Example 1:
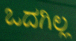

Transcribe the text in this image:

ಒದಗಿಲ್ಲ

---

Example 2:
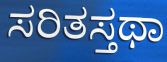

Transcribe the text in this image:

ಸರಿತಸ್ತಥಾ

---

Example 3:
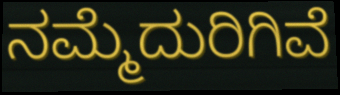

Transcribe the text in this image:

ನಮ್ಮೆದುರಿಗಿವೆ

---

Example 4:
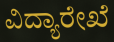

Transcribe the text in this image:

ವಿದ್ಯಾರೇಖೆ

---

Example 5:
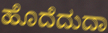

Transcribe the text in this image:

ಹೊದೆದುದಾ